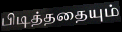
பிடித்ததையும்